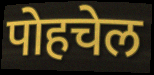
पोहचेल